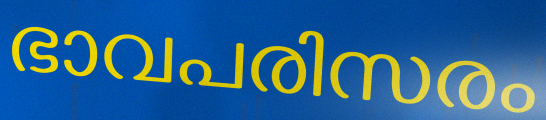
ഭാവപരിസരം